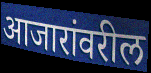
आजारांवरील